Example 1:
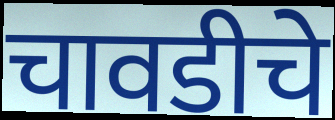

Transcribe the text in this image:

चावडीचे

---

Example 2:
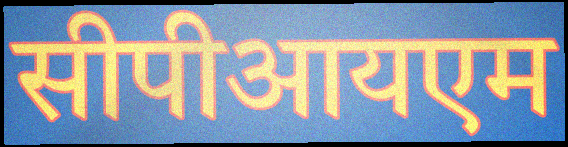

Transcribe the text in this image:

सीपीआयएम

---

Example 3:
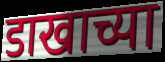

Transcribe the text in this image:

डाखाच्या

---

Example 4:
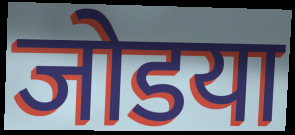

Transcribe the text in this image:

जोडया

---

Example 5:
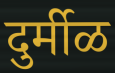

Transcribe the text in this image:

दुर्मीळ